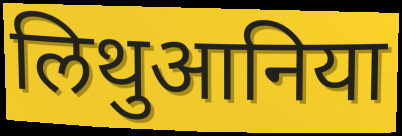
लिथुआनिया